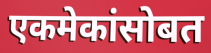
एकमेकांसोबत